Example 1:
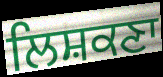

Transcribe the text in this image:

ਲਿਸ਼ਕਣਾ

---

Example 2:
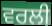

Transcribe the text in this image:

ਵਰਲੀ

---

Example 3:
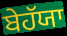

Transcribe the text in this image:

ਬੇਹੱਯਾ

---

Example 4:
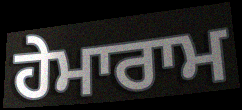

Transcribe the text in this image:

ਹੇਮਾਰਾਮ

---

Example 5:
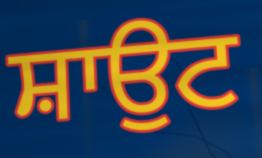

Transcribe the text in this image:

ਸ਼ਾਉਟ